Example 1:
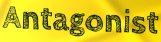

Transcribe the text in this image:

Antagonist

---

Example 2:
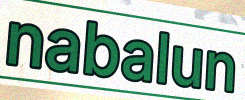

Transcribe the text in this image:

nabalun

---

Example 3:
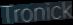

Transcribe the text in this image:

Tronick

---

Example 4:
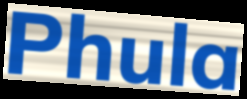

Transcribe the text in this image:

Phula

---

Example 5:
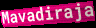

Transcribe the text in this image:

Mavadiraja